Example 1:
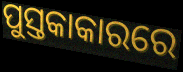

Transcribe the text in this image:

ପୁସ୍ତକାକାରରେ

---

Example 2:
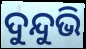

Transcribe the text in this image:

ଦୁନ୍ଦୁଭି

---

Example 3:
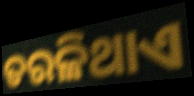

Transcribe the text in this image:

ତରଳିଥାଏ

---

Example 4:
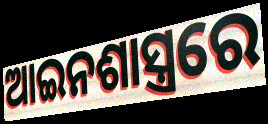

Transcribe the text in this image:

ଆଇନଶାସ୍ତ୍ରରେ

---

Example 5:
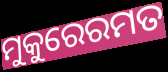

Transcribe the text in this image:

ମୁକୁରେରମତ